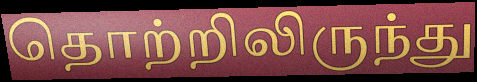
தொற்றிலிருந்து